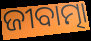
ଜୀବାତ୍ମା